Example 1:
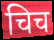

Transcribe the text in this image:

चिच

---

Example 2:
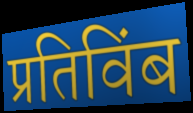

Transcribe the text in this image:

प्रतिविंब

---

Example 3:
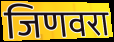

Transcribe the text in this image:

जिणवरा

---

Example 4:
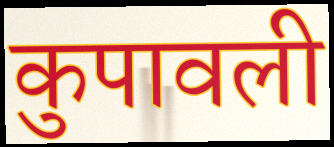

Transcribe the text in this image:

कुपावली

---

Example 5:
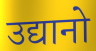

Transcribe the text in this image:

उद्यानो